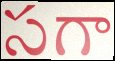
సగా